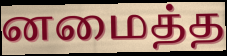
னமைத்த